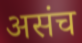
असंच